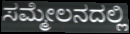
ಸಮ್ಮೇಲನದಲ್ಲಿ